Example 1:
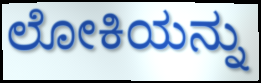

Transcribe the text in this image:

ಲೋಕಿಯನ್ನು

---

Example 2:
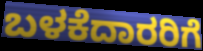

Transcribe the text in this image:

ಬಳಕೆದಾರರಿಗೆ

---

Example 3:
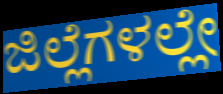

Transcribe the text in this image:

ಜಿಲ್ಲೆಗಳಲ್ಲೇ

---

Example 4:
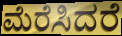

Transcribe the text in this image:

ಮೆರೆಸಿದರೆ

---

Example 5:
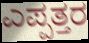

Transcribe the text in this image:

ಎಪ್ಪತ್ತರ